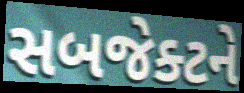
સબજેક્ટને